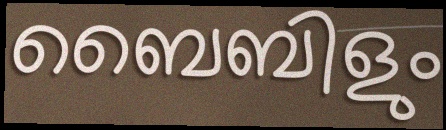
ബൈബിളും